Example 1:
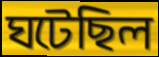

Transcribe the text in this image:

ঘটেছিল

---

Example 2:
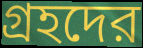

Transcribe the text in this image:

গ্রহদের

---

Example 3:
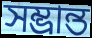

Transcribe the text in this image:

সম্ভ্রান্ত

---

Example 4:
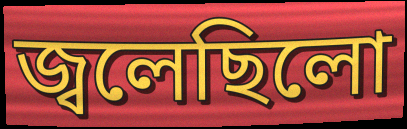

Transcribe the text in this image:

জ্বলেছিলো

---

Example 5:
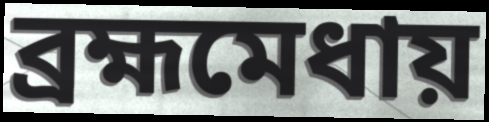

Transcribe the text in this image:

ব্রহ্মমেধায়